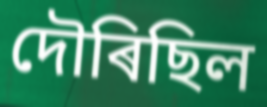
দৌৰিছিল